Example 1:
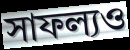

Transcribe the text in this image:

সাফল্যও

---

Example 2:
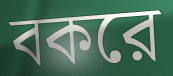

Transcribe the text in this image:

বকরে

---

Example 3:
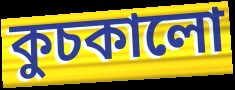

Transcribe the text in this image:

কুচকালো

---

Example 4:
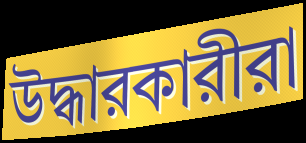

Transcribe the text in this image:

উদ্ধারকারীরা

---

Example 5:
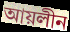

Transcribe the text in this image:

আয়লীন